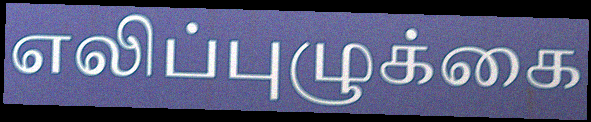
எலிப்புழுக்கை